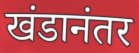
खंडानंतर